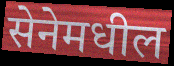
सेनेमधील